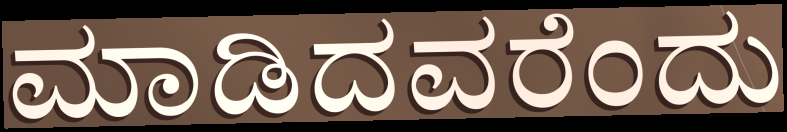
ಮಾಡಿದವರೆಂದು